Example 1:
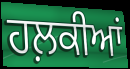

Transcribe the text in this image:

ਹਲ਼ਕੀਆਂ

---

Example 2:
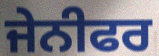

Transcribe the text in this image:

ਜੇਨੀਫਰ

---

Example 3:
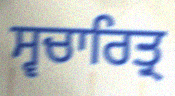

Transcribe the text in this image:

ਸ੍ਵਚਾਰਿਤ੍ਰ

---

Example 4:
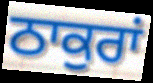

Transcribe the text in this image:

ਠਾਕੁਰਾਂ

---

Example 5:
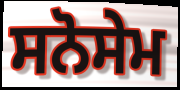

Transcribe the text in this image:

ਸਨੋਸੇਮ